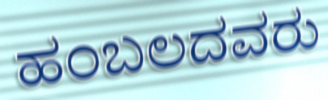
ಹಂಬಲದವರು